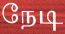
நேடி